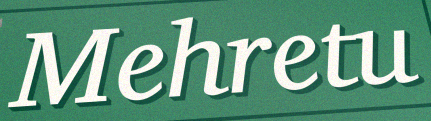
Mehretu